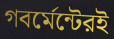
গবর্মেন্টেরই